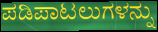
ಪಡಿಪಾಟಲುಗಳನ್ನು